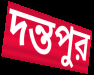
দন্তপুর